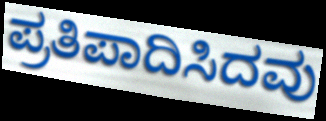
ಪ್ರತಿಪಾದಿಸಿದವು